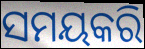
ସମୟକରି